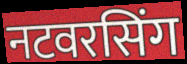
नटवरसिंग